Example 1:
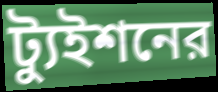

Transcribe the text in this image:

ট্যুইশনের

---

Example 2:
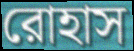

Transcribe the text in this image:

রোহাস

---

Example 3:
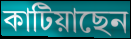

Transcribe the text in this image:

কাটিয়াছেন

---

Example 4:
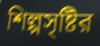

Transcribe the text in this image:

শিল্পসৃষ্টির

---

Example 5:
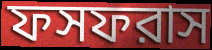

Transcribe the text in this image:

ফসফরাস